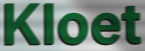
Kloet